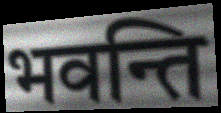
भवन्ति